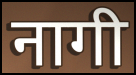
नागी